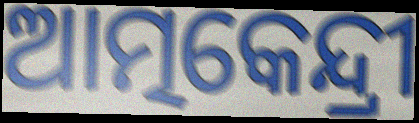
ଆତ୍ମକେନ୍ଦ୍ରୀ